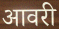
आवरी